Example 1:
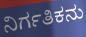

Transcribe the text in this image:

ನಿರ್ಗತಿಕನು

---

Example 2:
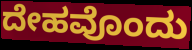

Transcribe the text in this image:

ದೇಹವೊಂದು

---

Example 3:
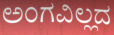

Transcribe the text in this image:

ಅಂಗವಿಲ್ಲದ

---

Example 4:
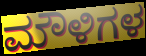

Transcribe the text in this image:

ಮೌಳಿಗಳ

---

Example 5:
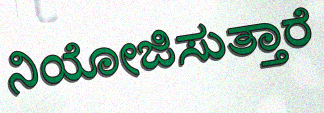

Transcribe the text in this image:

ನಿಯೋಜಿಸುತ್ತಾರೆ